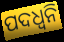
ପଦଧ୍ଵନି